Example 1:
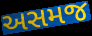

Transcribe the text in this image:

અસમજ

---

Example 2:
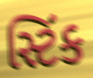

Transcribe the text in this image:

સ્ટિંક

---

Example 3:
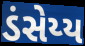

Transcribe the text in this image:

ડંસેય્ય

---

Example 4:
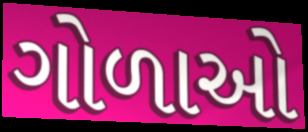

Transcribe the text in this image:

ગોળાઓ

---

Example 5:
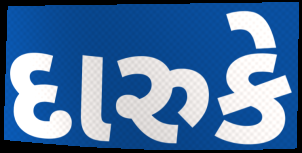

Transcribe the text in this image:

દારુકે